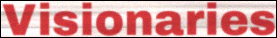
Visionaries